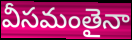
వీసమంతైనా